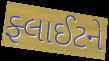
ફ્લાઈટને